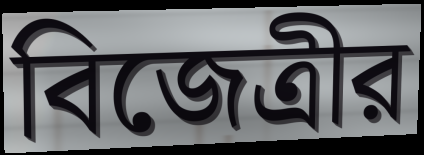
বিজেত্রীর